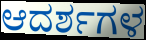
ಆದರ್ಶಗಳ